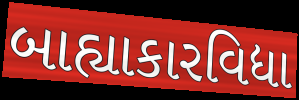
બાહ્યાકારવિદ્યા